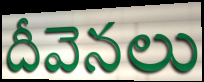
దీవెనలు